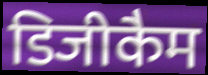
डिजीकैम